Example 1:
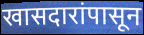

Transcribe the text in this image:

खासदारांपासून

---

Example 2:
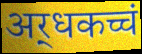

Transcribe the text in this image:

अर्धकच्चं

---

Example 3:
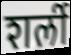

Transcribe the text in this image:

शर्ली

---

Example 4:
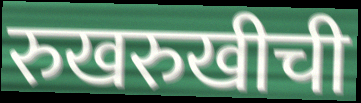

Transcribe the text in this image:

रुखरुखीची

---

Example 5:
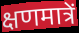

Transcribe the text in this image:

क्षणमात्रें